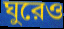
ঘুরেও